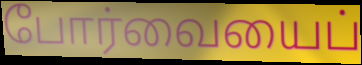
போர்வையைப்